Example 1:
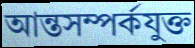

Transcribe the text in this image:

আন্তসম্পর্কযুক্ত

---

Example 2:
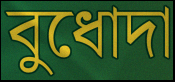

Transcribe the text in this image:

বুধোদা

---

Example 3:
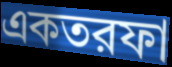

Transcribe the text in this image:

একতরফা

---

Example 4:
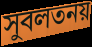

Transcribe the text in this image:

সুবলতনয়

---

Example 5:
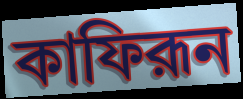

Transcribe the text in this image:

কাফিরূন